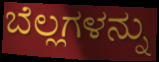
ಬೆಲ್ಲಗಳನ್ನು